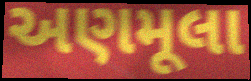
અણમૂલા